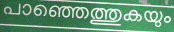
പാഞ്ഞെത്തുകയും